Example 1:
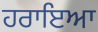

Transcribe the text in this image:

ਹਰਾਇਆ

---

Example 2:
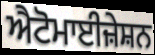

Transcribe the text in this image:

ਐਟੋਮਾਈਜ਼ੇਸ਼ਨ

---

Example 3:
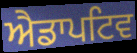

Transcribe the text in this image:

ਐਡਾਪਟਿਵ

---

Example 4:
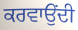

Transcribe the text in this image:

ਕਰਵਾਉਂਦੀ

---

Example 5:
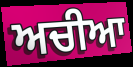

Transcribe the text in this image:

ਅਚੀਆ